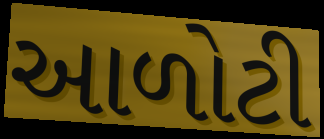
આળોટી